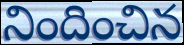
నిందించిన